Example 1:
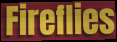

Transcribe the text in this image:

Fireflies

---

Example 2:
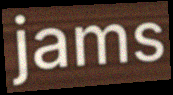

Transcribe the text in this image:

jams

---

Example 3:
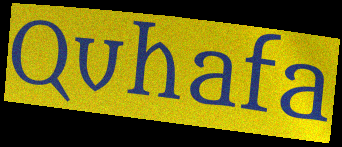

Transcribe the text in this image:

Quhafa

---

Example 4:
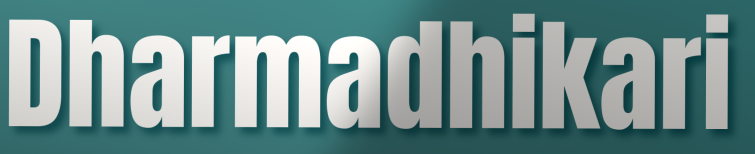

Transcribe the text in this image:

Dharmadhikari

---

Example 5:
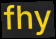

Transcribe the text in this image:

fhy